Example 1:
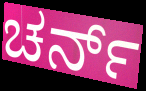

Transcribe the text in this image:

ಚರ್ನ್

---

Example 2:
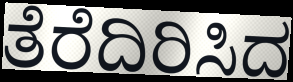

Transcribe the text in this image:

ತೆರೆದಿರಿಸಿದ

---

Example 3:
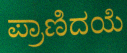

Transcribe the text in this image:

ಪ್ರಾಣಿದಯೆ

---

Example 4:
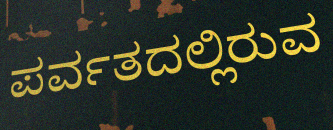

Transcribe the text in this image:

ಪರ್ವತದಲ್ಲಿರುವ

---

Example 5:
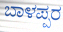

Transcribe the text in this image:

ಬಾಳಪ್ಪರ